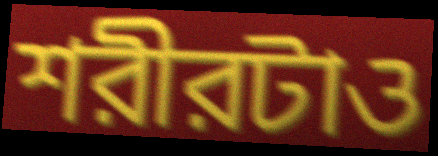
শরীরটাও